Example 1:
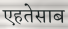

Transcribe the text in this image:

एहतेसाब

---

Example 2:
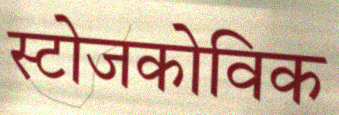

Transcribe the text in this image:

स्टोजकोविक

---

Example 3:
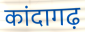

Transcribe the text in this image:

कांदागढ़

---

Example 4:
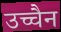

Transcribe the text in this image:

उच्चैन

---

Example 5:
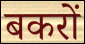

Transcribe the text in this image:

बकरों